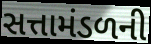
સત્તામંડળની